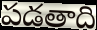
పడతాది